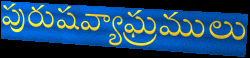
పురుషవ్యాఘ్రములు